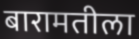
बारामतीला